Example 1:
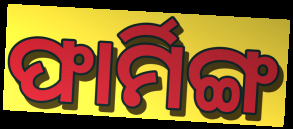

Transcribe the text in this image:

ଫାର୍ମିଙ୍ଗ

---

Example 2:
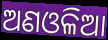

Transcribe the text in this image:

ଅଣଓଳିଆ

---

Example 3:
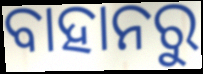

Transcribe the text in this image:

ବାହାନରୁ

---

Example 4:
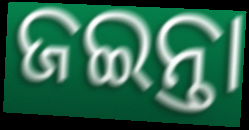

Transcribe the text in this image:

ଜଇନ୍ତା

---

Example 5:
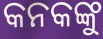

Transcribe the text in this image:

କନକଙ୍କୁ